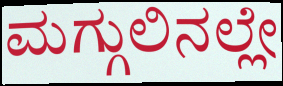
ಮಗ್ಗುಲಿನಲ್ಲೇ